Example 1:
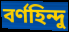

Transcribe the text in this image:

বৰ্ণহিন্দু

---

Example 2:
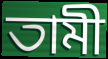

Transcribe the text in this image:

তামী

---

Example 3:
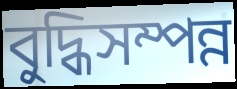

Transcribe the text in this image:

বুদ্ধিসম্পন্ন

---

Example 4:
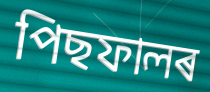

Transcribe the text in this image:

পিছফালৰ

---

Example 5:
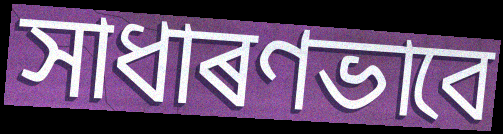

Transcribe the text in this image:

সাধাৰণভাবে